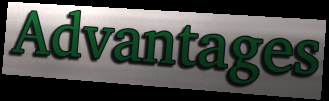
Advantages